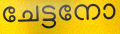
ചേട്ടനോ